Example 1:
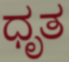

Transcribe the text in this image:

ಧೃತ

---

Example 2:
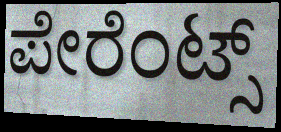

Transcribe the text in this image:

ಪೇರೆಂಟ್ಸ್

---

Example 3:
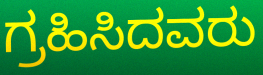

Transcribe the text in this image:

ಗ್ರಹಿಸಿದವರು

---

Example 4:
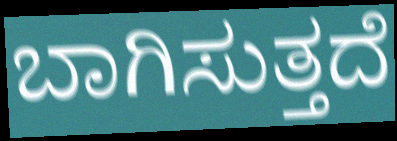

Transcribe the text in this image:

ಬಾಗಿಸುತ್ತದೆ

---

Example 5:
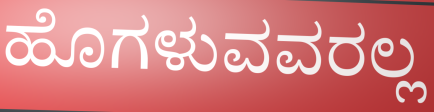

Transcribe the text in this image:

ಹೊಗಳುವವರಲ್ಲ